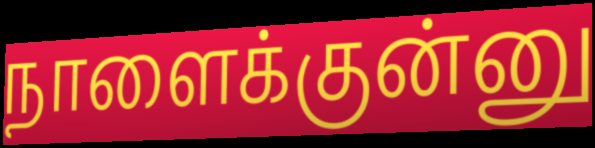
நாளைக்குன்னு